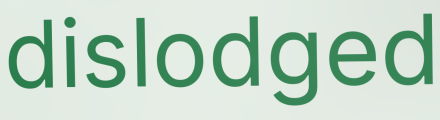
dislodged